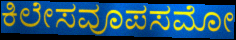
ಕಿಲೇಸವೂಪಸಮೋ